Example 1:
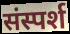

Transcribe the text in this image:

संस्पर्श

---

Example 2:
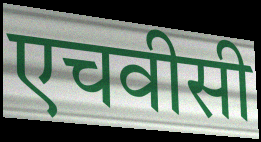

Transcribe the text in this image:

एचवीसी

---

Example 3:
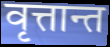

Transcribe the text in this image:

वृत्तान्त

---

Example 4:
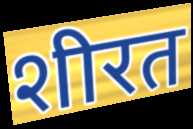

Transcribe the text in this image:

शीरत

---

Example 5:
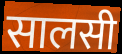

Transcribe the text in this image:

सालसी